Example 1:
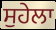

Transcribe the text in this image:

ਸੁਹੇਲਾ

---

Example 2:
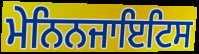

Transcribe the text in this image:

ਮੇਨਿਨਜਾਇਟਿਸ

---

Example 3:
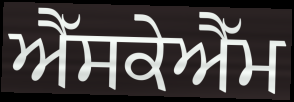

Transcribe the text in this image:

ਐੱਸਕੇਐੱਮ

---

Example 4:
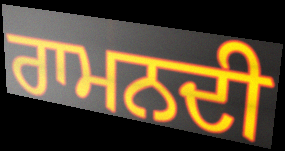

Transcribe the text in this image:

ਰਾਮਨਦੀ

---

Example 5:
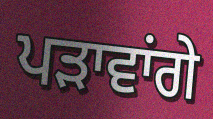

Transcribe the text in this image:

ਪੜਾਵਾਂਗੇ